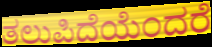
ತಲುಪಿದೆಯೆಂದರೆ